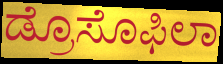
ಡ್ರೊಸೊಫಿಲಾ